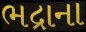
ભદ્રાના